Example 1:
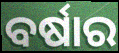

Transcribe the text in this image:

ବର୍ଷାର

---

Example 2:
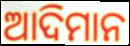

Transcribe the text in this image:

ଆଦିମାନ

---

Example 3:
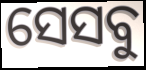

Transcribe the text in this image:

ସେସବୁ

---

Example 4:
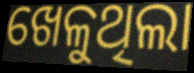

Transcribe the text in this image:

ଖେଳୁଥିଲା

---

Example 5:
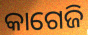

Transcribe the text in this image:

କାଗେଜି